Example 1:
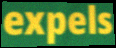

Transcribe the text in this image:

expels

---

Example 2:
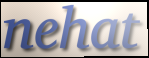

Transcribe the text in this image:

nehat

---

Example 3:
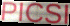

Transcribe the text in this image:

PICSI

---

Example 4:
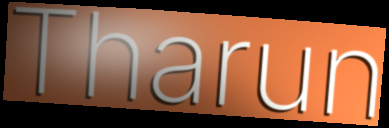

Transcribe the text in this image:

Tharun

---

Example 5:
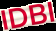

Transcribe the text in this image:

IDBI